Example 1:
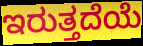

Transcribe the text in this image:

ಇರುತ್ತದೆಯೆ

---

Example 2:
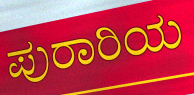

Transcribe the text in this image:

ಪುರಾರಿಯ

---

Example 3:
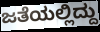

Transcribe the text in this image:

ಜತೆಯಲ್ಲಿದ್ದು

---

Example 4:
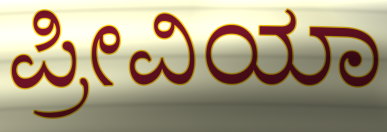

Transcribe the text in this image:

ಪ್ರೀವಿಯಾ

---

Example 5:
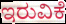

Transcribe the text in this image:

ಇರುವಿಕೆ